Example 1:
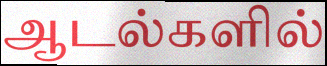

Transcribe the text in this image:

ஆடல்களில்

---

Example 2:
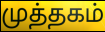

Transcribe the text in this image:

முத்தகம்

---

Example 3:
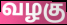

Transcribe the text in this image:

வழகு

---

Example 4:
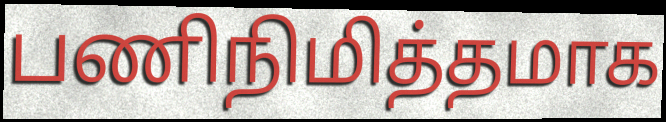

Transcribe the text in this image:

பணிநிமித்தமாக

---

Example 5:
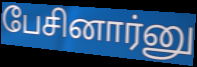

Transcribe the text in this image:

பேசினார்னு